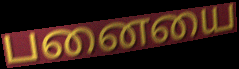
பனையை